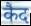
कैद